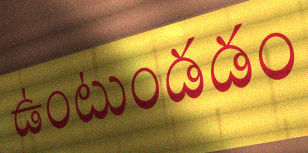
ఉంటుండడం